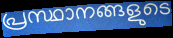
പ്രസ്ഥാനങ്ങളുടെ